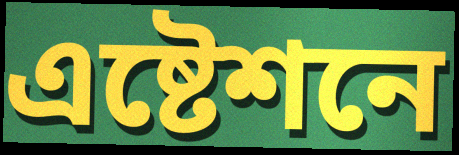
এষ্টেশনে